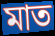
মাত